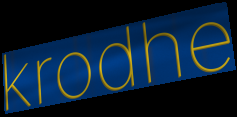
krodhe